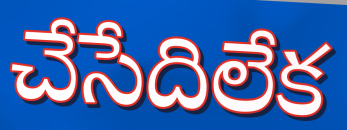
చేసేదిలేక